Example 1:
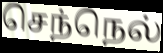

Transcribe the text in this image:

செந்நெல்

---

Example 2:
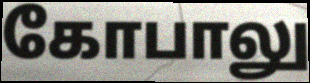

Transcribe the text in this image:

கோபாலு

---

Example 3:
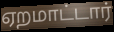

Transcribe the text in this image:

ஏறமாட்டார்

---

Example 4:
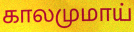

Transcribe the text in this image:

காலமுமாய்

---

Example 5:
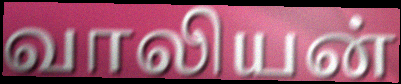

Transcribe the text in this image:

வாலியன்